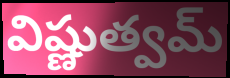
విష్ణుత్వమ్